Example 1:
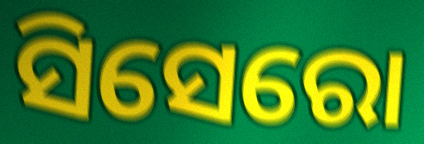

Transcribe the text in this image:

ସିସେରୋ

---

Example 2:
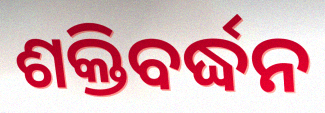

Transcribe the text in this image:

ଶକ୍ତିବର୍ଦ୍ଧନ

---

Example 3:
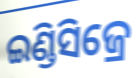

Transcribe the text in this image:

ଇଣ୍ଡିସିଜ୍ରେ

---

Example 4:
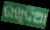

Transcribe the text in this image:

ରଖିଦିଆ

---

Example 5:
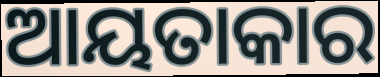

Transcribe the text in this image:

ଆୟତାକାର